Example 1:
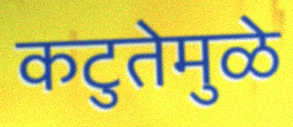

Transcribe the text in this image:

कटुतेमुळे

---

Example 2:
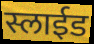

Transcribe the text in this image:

स्लाईड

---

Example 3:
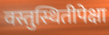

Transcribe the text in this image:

वस्तुस्थितीपेक्षा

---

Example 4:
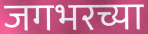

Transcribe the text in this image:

जगभरच्या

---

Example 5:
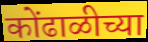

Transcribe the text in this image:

कोंढाळीच्या